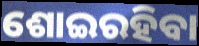
ଶୋଇରହିବା